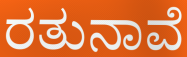
ರತುನಾವೆ